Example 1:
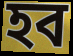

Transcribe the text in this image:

হব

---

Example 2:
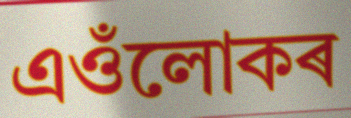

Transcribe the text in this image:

এওঁলোকৰ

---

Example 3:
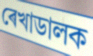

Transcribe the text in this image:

ৰেখাডালক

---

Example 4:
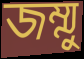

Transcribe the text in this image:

জম্মু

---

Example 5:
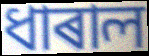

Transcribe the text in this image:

ধাৰাল